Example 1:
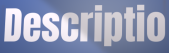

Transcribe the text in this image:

Descriptio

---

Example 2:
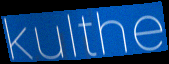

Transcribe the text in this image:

kulthe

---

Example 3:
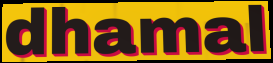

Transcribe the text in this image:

dhamal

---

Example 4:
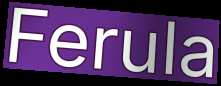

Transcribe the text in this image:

Ferula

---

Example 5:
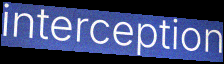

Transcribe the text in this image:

interception